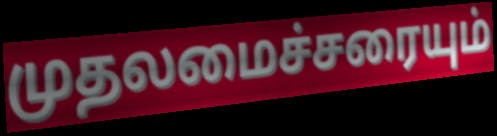
முதலமைச்சரையும்